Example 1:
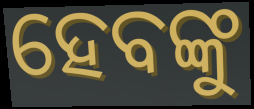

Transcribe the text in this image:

ହେବଙ୍କୁ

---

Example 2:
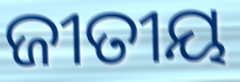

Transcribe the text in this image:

ଜୀତୀୟ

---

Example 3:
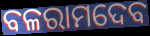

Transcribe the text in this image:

ବଳରାମଦେବ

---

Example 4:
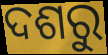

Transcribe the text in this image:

ଦଶରୁ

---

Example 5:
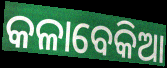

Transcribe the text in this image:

କଳାବେକିଆ